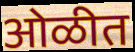
ओळीत